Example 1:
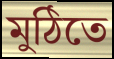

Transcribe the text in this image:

মুঠিতে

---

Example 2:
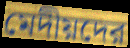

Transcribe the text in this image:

মেদীয়দের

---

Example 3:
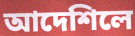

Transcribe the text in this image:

আদেশিলে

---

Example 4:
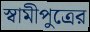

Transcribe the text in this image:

স্বামীপুত্রের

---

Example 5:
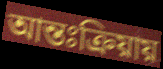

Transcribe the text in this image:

আন্তঃক্রিয়ায়